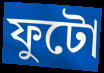
ফুটো